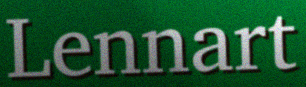
Lennart